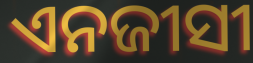
ଏନଜୀସୀ